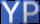
YP